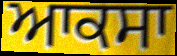
ਆਕਸਾ